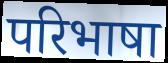
परिभाषा